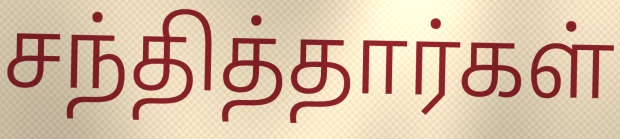
சந்தித்தார்கள்